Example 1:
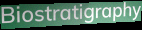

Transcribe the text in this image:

Biostratigraphy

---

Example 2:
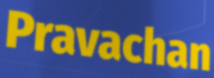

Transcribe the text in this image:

Pravachan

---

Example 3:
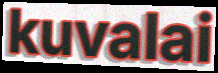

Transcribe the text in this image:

kuvalai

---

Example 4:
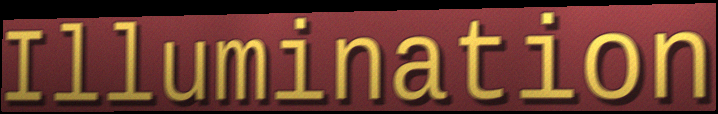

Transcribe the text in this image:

Illumination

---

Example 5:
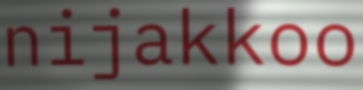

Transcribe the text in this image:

nijakkoo